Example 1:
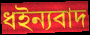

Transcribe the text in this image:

ধইন্যবাদ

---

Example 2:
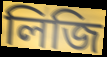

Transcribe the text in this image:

লিজি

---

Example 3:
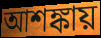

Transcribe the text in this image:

আশঙ্কায়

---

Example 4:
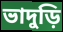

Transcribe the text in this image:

ভাদুড়ি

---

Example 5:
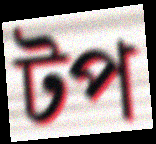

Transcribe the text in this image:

টপ